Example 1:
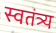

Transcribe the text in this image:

स्वतंत्र्य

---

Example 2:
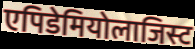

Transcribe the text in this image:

एपिडेमियोलाजिस्ट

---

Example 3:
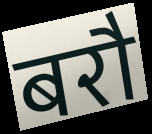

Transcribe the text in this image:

बरौ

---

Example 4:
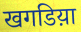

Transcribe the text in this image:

खगडिय़ा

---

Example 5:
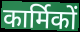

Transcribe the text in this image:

कार्मिकों